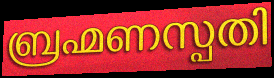
ബ്രഹ്മണസ്പതി